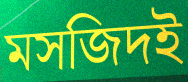
মসজিদই